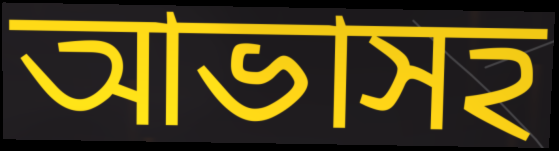
আভাসহ